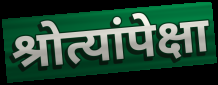
श्रोत्यांपेक्षा